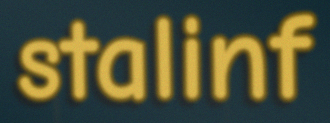
stalinf